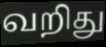
வறிது